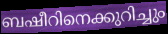
ബഷീറിനെക്കുറിച്ചും